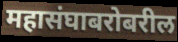
महासंघाबरोबरील